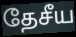
தேசீய